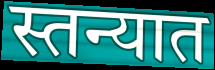
स्तन्यात